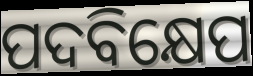
ପଦବିକ୍ଷେପ